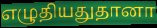
எழுதியதுதானா